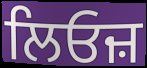
ਲਿਓਜ਼